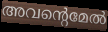
അവന്റെമേൽ